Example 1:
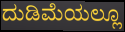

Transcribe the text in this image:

ದುಡಿಮೆಯಲ್ಲೂ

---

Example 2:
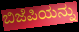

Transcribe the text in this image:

ಬಿಜೆಪಿಯನ್ನು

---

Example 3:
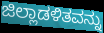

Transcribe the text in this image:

ಜಿಲ್ಲಾಡಳಿತವನ್ನು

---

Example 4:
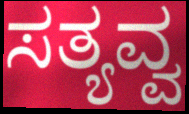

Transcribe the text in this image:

ಸತ್ಯವ್ವ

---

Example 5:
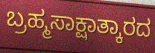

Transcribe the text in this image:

ಬ್ರಹ್ಮಸಾಕ್ಷಾತ್ಕಾರದ